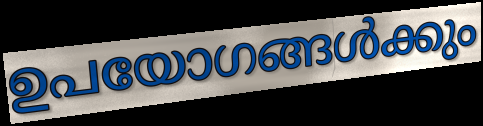
ഉപയോഗങ്ങൾക്കും